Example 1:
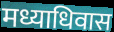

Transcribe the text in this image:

मध्याधिवास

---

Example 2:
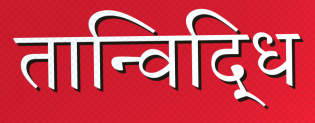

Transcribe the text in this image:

तान्विद्धि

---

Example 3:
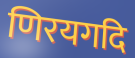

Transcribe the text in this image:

णिरयगदि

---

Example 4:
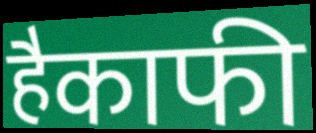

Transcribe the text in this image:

हैकाफी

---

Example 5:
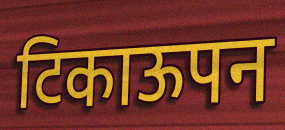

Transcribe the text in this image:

टिकाऊपन